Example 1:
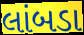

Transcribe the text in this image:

લાંબડા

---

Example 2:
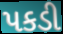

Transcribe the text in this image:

પકડી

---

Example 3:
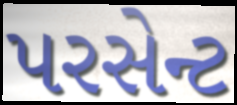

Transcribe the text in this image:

પરસેન્ટ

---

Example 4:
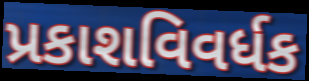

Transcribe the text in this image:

પ્રકાશવિવર્ધક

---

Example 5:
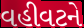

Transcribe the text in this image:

વહીવટને